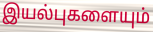
இயல்புகளையும்